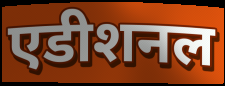
एडीशनल